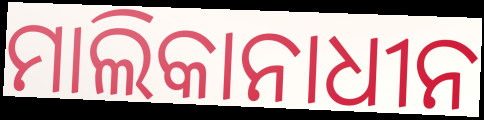
ମାଲିକାନାଧୀନ